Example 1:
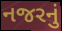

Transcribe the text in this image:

નજરનું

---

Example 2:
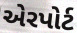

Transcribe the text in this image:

એરપોર્ટ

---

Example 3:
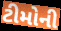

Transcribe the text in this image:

ટીમોની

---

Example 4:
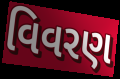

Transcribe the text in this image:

વિવરણ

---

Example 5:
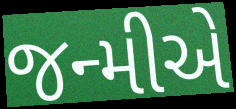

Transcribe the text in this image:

જન્મીએ